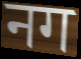
नग